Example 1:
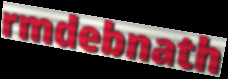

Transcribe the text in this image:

rmdebnath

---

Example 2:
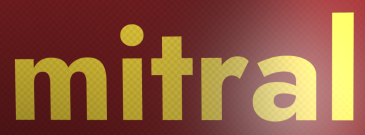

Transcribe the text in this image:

mitral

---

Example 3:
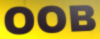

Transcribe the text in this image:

OOB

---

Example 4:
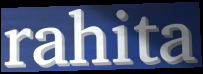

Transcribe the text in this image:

rahita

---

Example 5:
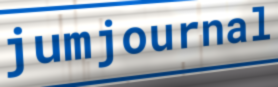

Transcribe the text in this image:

jumjournal